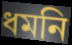
ধমনি